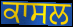
ਕਾਸਲ